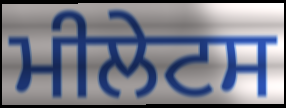
ਮੀਲੇਟਸ